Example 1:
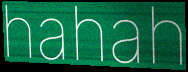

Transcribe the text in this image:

hahah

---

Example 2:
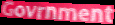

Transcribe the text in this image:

Govrnment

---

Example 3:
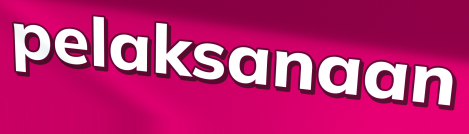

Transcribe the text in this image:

pelaksanaan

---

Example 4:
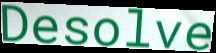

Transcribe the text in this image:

Desolve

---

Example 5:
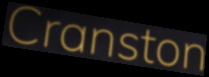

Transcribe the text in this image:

Cranston